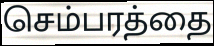
செம்பரத்தை